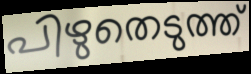
പിഴുതെടുത്ത്